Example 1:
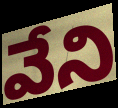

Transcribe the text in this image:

వేని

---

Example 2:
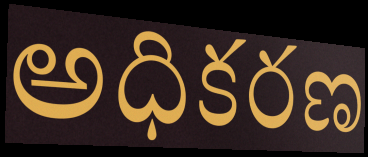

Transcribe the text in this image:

అధికరణ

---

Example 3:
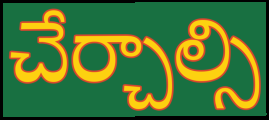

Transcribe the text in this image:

చేర్చాల్సి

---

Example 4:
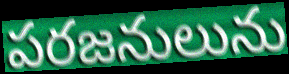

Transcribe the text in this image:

పరజనులును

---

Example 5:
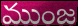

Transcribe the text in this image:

ముంజ